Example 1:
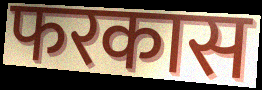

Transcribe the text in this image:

फरकास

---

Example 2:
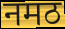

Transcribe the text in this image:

नमठ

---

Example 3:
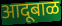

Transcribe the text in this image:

आदूबाळ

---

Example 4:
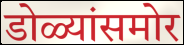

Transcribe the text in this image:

डोळ्यांसमोर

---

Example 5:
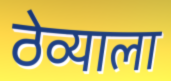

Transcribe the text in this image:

ठेव्याला